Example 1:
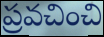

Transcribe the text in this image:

ప్రవచించి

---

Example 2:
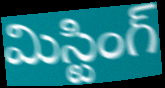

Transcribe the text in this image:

మిస్టింగ్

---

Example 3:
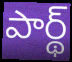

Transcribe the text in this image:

పార్థ్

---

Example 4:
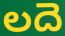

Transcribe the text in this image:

లదె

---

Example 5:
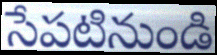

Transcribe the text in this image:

సేపటినుండి